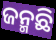
ଜନ୍ମଛି